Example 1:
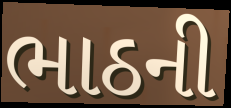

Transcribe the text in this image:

ભાઠની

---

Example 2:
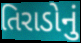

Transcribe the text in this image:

તિરાડોનું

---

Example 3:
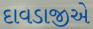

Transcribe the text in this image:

દાવડાજીએ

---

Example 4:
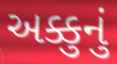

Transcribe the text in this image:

અક્કુનું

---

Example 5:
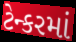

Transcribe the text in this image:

ટેન્કરમાં